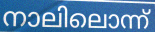
നാലിലൊന്ന്